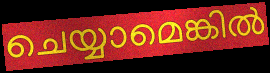
ചെയ്യാമെങ്കിൽ